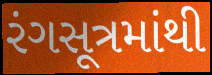
રંગસૂત્રમાંથી